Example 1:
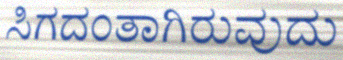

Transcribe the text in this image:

ಸಿಗದಂತಾಗಿರುವುದು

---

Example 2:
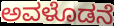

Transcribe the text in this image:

ಅವಳೊಡನೆ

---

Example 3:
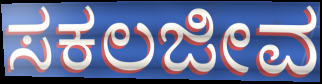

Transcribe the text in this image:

ಸಕಲಜೀವ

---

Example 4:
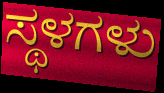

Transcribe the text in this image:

ಸ್ಥಳಗಳು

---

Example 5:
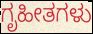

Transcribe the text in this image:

ಗೃಹೀತಗಳು